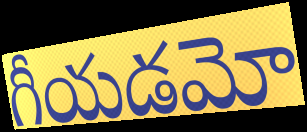
గీయడమో